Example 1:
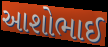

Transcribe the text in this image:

આશોભાઈ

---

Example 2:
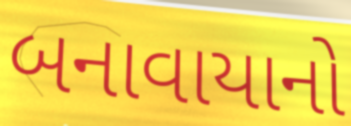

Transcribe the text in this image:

બનાવાયાનો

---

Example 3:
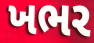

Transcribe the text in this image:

ખભર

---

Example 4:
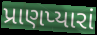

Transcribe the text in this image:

પ્રાણપ્યારાં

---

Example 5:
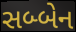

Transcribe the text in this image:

સબ્બેન